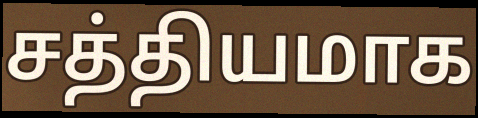
சத்தியமாக